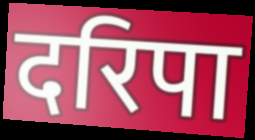
दरिपा